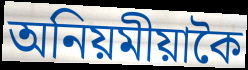
অনিয়মীয়াকৈ